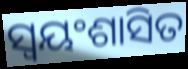
ସ୍ୱୟଂଶାସିତ